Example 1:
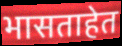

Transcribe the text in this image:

भासताहेत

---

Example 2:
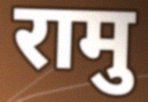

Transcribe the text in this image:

रामु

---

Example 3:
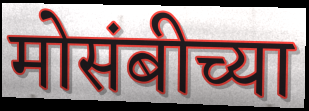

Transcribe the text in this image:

मोसंबीच्या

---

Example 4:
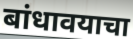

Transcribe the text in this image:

बांधावयाचा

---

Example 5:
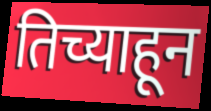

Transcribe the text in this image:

तिच्याहून